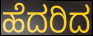
ಹೆದರಿದ